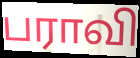
பராவி